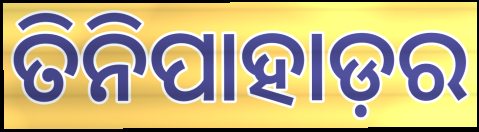
ତିନିପାହାଡ଼ର